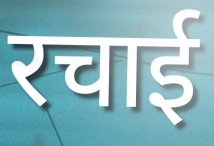
रचाई